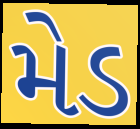
મેડ